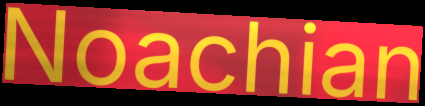
Noachian